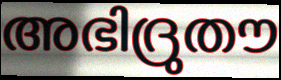
അഭിദ്രുതൗ